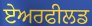
ਏਅਰਫੀਲਡ